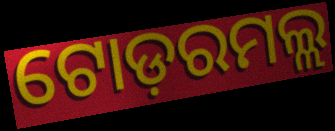
ଟୋଡ଼ରମଲ୍ଲ